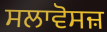
ਸਲਾਵੋਸਜ਼